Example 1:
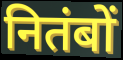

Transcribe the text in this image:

नितंबों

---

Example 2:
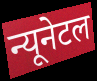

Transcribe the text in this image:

न्यूनेटल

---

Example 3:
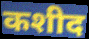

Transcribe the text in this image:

कशीद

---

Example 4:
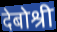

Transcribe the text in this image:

देबोश्री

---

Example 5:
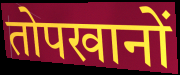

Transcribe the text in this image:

तोपखानों